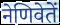
नेणिवेतें